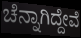
ಚೆನ್ನಾಗಿದ್ದೇವೆ